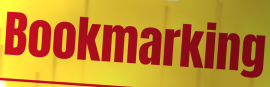
Bookmarking